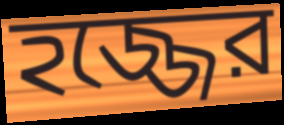
হজ্জের